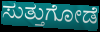
ಸುತ್ತುಗೋಡೆ